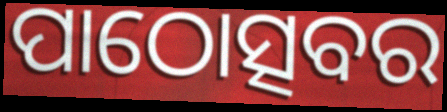
ପାଠୋତ୍ସବର